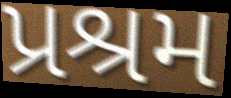
પ્રશ્રમ